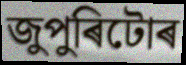
জুপুৰিটোৰ